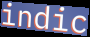
indic